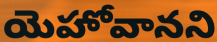
యెహోవానని